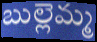
బుల్లెమ్మ